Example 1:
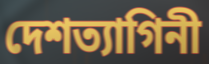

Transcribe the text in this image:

দেশত্যাগিনী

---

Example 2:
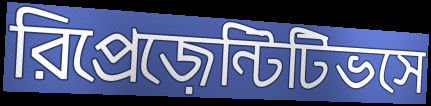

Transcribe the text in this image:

রিপ্রেজ়েন্টিটিভসে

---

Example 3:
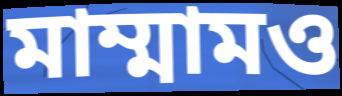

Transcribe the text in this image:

মাম্মামও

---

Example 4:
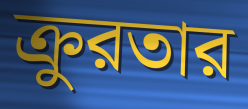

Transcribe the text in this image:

ক্রুরতার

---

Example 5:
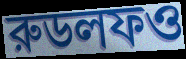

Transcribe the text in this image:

রুডলফও